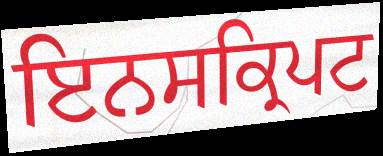
ਇਨਸਕ੍ਰਿਪਟ